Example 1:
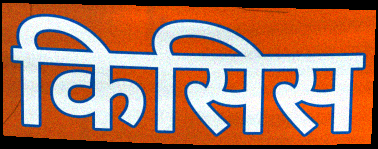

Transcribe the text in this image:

किसिस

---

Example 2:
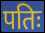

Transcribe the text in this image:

पतिः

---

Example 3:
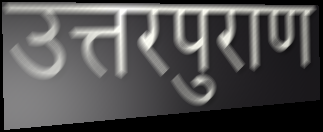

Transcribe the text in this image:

उत्तरपुराण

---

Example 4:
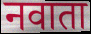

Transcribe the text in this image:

नवाता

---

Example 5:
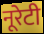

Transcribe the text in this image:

नूरेटी